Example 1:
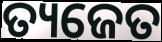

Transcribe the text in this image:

ତ୍ୟଜେତ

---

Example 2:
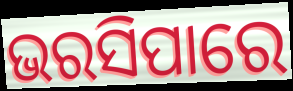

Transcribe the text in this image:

ଭରସିପାରେ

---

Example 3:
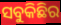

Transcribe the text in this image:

ସବୁକିଛିର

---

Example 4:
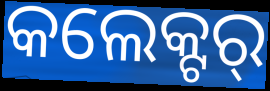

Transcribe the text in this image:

କଲେକ୍ଟର୍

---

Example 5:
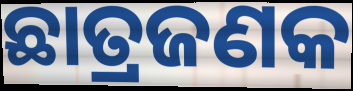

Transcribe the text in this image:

ଛାତ୍ରଜଣକ